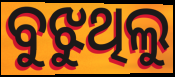
ବୁଝୁଥିଲୁ